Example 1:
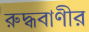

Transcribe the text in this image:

রুদ্ধবাণীর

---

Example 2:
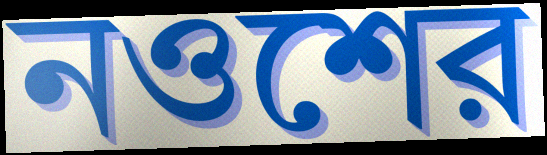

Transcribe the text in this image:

নওশের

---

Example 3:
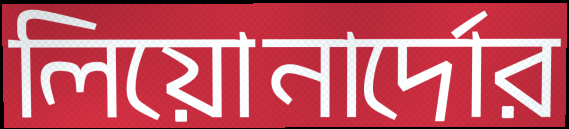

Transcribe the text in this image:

লিয়োনার্দোর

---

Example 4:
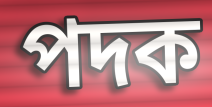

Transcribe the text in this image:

পদক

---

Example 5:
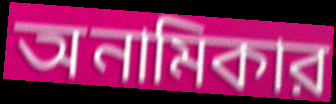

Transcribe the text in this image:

অনামিকার